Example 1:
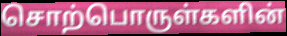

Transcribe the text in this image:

சொற்பொருள்களின்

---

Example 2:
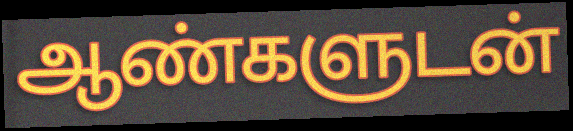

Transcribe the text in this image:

ஆண்களுடன்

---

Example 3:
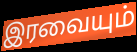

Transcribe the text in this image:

இரவையும்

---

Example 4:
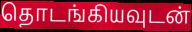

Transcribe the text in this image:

தொடங்கியவுடன்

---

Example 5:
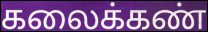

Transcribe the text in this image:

கலைக்கண்